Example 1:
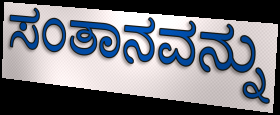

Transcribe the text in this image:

ಸಂತಾನವನ್ನು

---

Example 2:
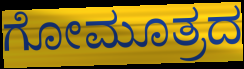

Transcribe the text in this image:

ಗೋಮೂತ್ರದ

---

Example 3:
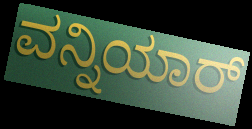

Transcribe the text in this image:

ವನ್ನಿಯಾರ್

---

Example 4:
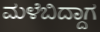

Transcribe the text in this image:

ಮಳೆಬಿದ್ದಾಗ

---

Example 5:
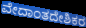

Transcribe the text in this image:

ವೇದಾಂತದೇಶಿಕರ